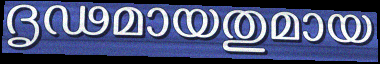
ദൃഢമായതുമായ